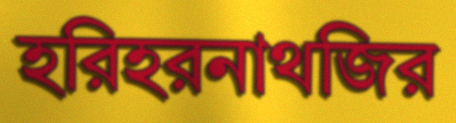
হরিহরনাথজির